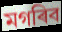
মগৰিব